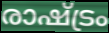
രാഷ്ട്രം